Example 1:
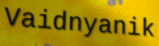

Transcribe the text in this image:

Vaidnyanik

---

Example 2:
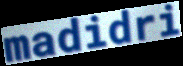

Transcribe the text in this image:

madidri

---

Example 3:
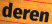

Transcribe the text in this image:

deren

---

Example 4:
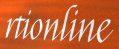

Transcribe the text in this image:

rtionline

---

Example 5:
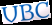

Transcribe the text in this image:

UBC